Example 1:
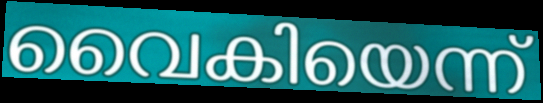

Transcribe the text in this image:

വൈകിയെന്ന്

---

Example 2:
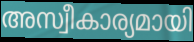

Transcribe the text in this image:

അസ്വീകാര്യമായി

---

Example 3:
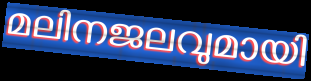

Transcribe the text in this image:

മലിനജലവുമായി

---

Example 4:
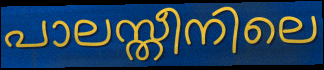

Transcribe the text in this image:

പാലസ്തീനിലെ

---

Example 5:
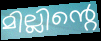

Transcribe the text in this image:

മില്ലിന്റെ